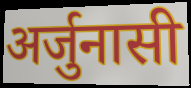
अर्जुनासी